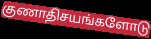
குணாதிசயங்களோடு